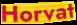
Horvat